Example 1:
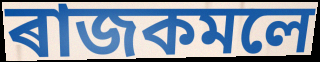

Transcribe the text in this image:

ৰাজকমলে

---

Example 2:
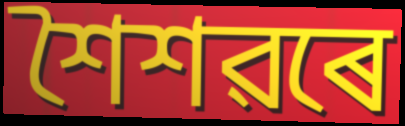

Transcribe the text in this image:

শৈশৱৰে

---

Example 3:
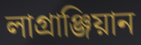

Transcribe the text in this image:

লাগ্ৰাঞ্জিয়ান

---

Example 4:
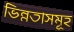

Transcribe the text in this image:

ভিন্নতাসমূহ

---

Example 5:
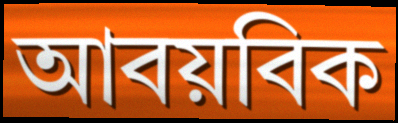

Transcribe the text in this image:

আবয়বিক